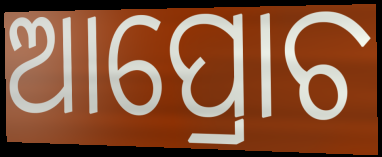
ଆପ୍ରୋଚ